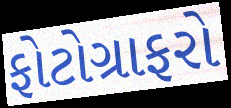
ફોટોગ્રાફરો